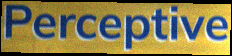
Perceptive